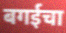
बगईचा